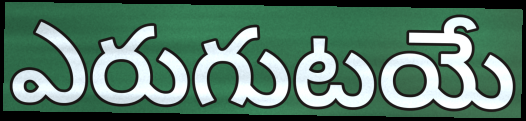
ఎరుగుటయే